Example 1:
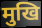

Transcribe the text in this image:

मुखि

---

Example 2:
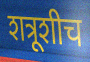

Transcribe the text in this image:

शत्रूशीच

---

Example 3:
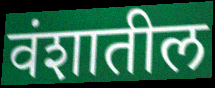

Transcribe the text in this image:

वंशातील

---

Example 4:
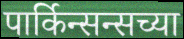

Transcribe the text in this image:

पार्किन्सन्सच्या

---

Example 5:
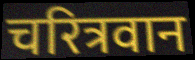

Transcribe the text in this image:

चरित्रवान